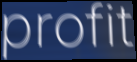
profit